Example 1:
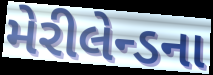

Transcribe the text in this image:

મેરીલેન્ડના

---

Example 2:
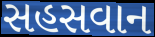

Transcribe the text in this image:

સહસવાન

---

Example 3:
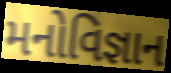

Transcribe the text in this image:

મનોવિજ્ઞાન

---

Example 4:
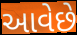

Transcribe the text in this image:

આવેછે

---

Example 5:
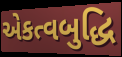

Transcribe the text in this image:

એકત્વબુદ્ધિ